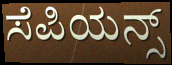
ಸೆಪಿಯನ್ಸ್